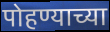
पोहण्याच्या